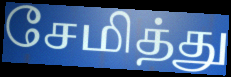
சேமித்து